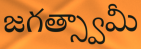
జగత్స్వామీ